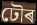
ঢৌৰ